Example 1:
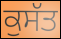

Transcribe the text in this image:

ਕੁਸੱਤ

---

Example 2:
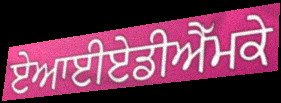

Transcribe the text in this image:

ਏਆਈਏਡੀਐੱਮਕੇ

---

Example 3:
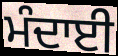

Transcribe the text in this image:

ਮੰਦਾਈ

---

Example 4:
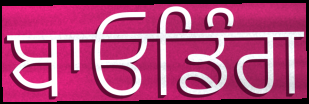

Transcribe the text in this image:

ਬਾਓਡਿੰਗ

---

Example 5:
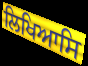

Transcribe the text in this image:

ਲਿਖਿਆਸਿ